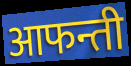
आफन्ती